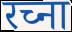
रच्ना